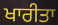
ਖਾਰੀਤਾ